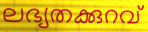
ലഭ്യതക്കുറവ്